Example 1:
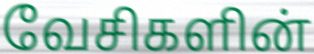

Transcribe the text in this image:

வேசிகளின்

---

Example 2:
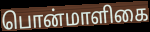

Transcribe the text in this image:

பொன்மாளிகை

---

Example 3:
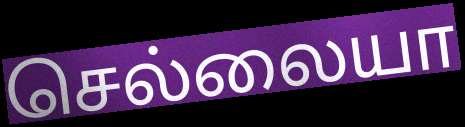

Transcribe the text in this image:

செல்லையா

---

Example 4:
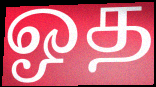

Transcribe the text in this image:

ஓத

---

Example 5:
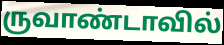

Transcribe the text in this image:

ருவாண்டாவில்